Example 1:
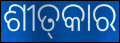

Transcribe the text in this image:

ଶୀତ୍‌କାର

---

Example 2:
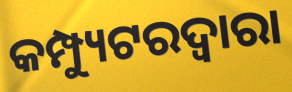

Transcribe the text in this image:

କମ୍ପ୍ୟୁଟରଦ୍ୱାରା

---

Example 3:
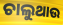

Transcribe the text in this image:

ଚାଲୁଥାଉ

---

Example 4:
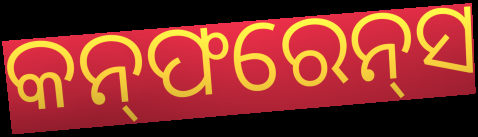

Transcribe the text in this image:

କନ୍‌ଫରେନ୍‌ସ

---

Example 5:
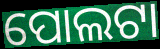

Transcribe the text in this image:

ପୋଲଟା